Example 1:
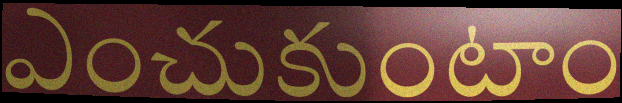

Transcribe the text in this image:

ఎంచుకుంటాం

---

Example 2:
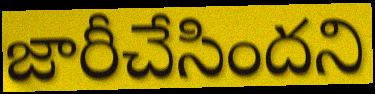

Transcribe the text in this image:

జారీచేసిందని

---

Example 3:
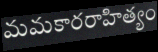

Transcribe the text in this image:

మమకారరాహిత్యం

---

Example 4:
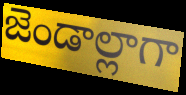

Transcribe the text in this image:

జెండాల్లాగా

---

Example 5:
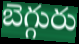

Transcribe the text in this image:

బెగ్గురు